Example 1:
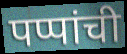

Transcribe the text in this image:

पप्पांची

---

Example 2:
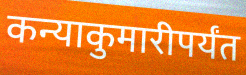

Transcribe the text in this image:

कन्याकुमारीपर्यंत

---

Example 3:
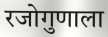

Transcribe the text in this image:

रजोगुणाला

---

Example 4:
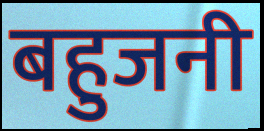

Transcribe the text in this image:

बहुजनी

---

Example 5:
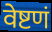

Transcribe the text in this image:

वेष्टणं